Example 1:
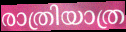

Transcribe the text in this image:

രാത്രിയാത്ര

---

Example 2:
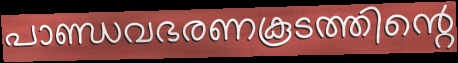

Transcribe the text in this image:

പാണ്ഡവഭരണകൂടത്തിന്റെ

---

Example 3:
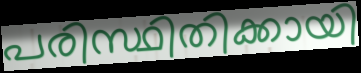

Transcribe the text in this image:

പരിസ്ഥിതിക്കായി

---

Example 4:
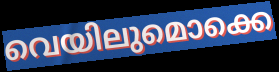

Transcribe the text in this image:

വെയിലുമൊക്കെ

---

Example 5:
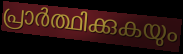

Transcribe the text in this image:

പ്രാർത്ഥിക്കുകയും